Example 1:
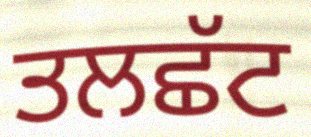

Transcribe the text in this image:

ਤਲਛੱਟ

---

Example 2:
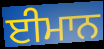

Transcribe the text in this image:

ਈਮਾਨ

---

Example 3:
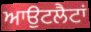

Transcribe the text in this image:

ਆਉਟਲੈਟਾਂ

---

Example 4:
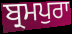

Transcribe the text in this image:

ਬ੍ਰਮਪੁਰਾ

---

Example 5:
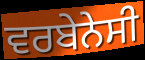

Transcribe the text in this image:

ਵਰਬੇਨੇਸੀ